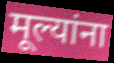
मूल्यांना